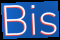
Bis